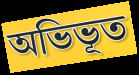
অভিভূত